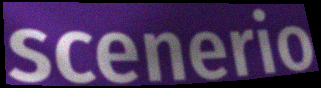
scenerio